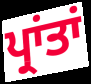
ਪ੍ਰਾਂਤਾਂ